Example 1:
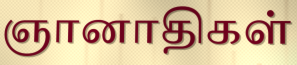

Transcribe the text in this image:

ஞானாதிகள்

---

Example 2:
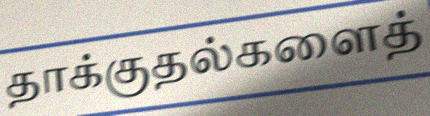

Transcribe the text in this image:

தாக்குதல்களைத்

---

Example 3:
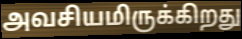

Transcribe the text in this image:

அவசியமிருக்கிறது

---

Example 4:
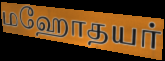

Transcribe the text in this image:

மஹோதயர்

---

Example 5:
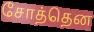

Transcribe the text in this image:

சோத்தென